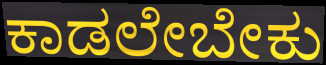
ಕಾಡಲೇಬೇಕು